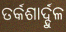
ତର୍କଶାର୍ଦ୍ଦୁଳ